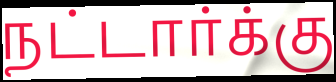
நட்டார்க்கு